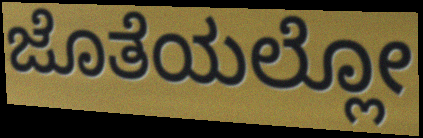
ಜೊತೆಯಲ್ಲೋ